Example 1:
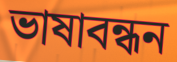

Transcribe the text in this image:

ভাষাবন্ধন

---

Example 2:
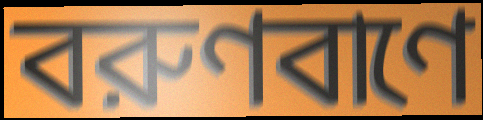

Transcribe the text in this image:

বরুণবাণে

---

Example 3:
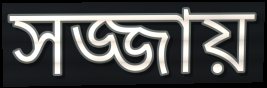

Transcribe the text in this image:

সজ্জায়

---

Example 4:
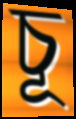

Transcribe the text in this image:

চূ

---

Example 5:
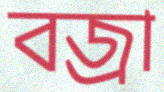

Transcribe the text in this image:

বজ্রা